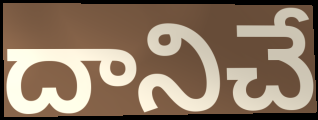
దానిచే